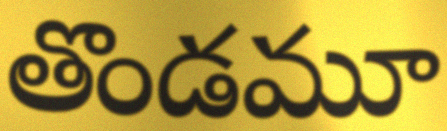
తొండమూ